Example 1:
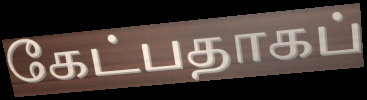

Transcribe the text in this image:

கேட்பதாகப்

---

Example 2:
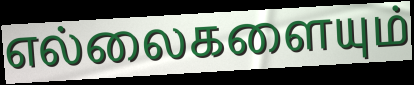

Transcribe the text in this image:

எல்லைகளையும்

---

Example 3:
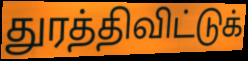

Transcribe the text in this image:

துரத்திவிட்டுக்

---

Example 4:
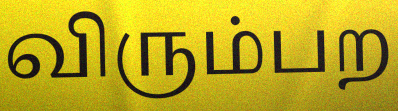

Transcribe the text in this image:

விரும்பற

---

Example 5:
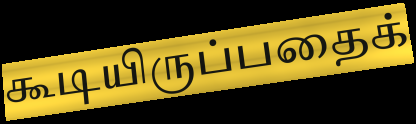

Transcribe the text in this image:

கூடியிருப்பதைக்